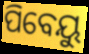
ପିବେୟୁ